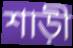
শাড়ী